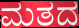
ಮತದ